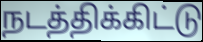
நடத்திக்கிட்டு